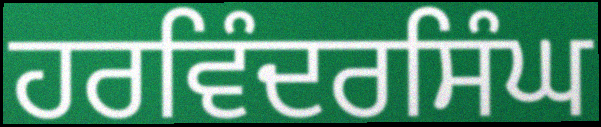
ਹਰਵਿੰਦਰਸਿੰਘ